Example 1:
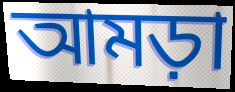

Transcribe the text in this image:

আমড়া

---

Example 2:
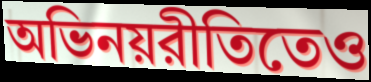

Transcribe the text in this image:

অভিনয়রীতিতেও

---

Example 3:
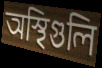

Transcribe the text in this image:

অস্থিগুলি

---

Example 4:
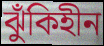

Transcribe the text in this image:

ঝুঁকিহীন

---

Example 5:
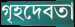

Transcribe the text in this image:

গৃহদেবতা